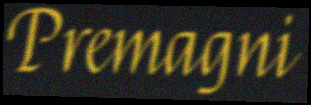
Premagni